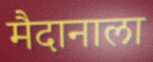
मैदानाला